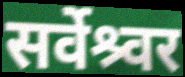
सर्वेश्र्वर